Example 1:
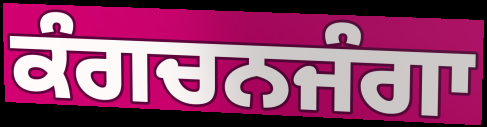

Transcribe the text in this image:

ਕੰਗਚਨਜੰਗਾ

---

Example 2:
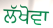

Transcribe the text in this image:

ਲੱਖੋਵਾ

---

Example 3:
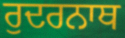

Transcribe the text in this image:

ਰੁਦਰਨਾਥ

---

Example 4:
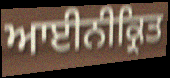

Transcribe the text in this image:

ਆਈਨੀਕ੍ਰਿਤ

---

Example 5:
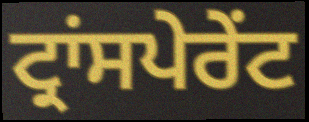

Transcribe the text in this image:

ਟ੍ਰਾਂਸਪੇਰੇਂਟ